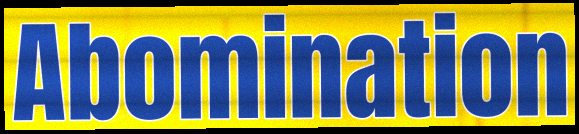
Abomination